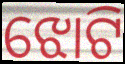
ଝୋଟି